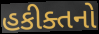
હકીક્તનો